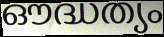
ഔദ്ധത്യം